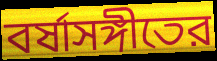
বর্ষাসঙ্গীতের